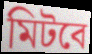
মিটবে